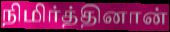
நிமிர்த்தினான்